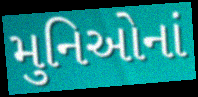
મુનિઓનાં